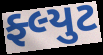
ફ્લ્યુટ